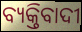
ବ୍ୟକ୍ତିବାଦୀ